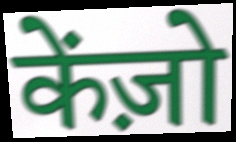
केंज़ो